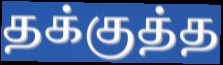
தக்குத்த